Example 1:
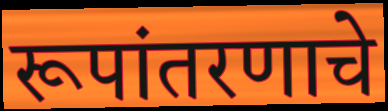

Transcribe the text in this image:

रूपांतरणाचे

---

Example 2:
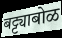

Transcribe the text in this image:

बट्ट्याबोळ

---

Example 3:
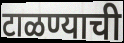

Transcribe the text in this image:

टाळण्याची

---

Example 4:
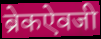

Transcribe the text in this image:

ब्रेकऐवजी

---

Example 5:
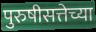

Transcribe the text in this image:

पुरुषीसत्तेच्या